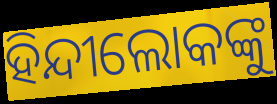
ହିନ୍ଦୀଲୋକଙ୍କୁ